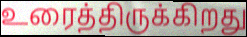
உரைத்திருக்கிறது